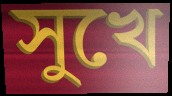
সুখে